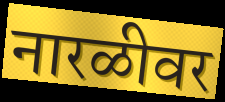
नारळीवर